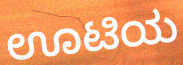
ಊಟಿಯ